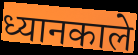
ध्यानकाले